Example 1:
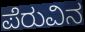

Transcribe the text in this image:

ಪೆರುವಿನ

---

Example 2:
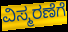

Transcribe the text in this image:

ವಿಸ್ಮರಣೆಗೆ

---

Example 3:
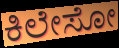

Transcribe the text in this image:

ಕಿಲೇಸೋ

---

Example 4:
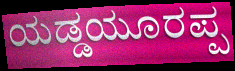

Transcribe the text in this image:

ಯಡ್ಡಯೂರಪ್ಪ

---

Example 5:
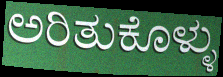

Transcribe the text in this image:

ಅರಿತುಕೊಳ್ಳು